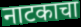
नाटकाचा